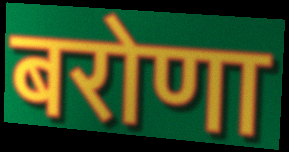
बरोणा